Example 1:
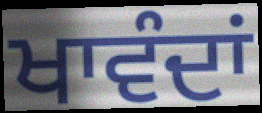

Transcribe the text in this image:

ਖਾਵੰਦਾਂ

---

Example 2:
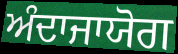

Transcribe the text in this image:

ਅੰਦਾਜਾਯੋਗ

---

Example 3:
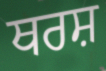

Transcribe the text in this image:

ਥਰਸ਼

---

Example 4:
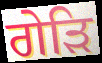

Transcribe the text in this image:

ਗੇੜਿ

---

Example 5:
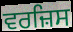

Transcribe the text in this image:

ਵਰਜ਼ਿਸ